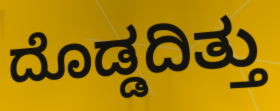
ದೊಡ್ಡದಿತ್ತು